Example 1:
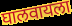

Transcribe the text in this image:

घालवायला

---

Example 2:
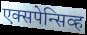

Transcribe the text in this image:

एक्सपेन्सिव्ह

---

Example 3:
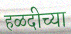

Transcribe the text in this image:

हळदीच्या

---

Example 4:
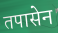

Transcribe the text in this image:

तपासेन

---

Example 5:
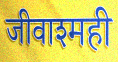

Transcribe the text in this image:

जीवाश्मही